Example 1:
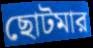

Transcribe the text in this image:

ছোটমার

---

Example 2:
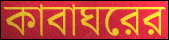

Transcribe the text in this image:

কাবাঘরের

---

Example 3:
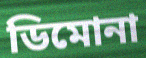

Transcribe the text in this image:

ডিমোনা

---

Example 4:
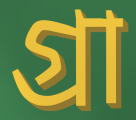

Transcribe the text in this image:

গ্রা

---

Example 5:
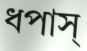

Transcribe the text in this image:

ধপাস্